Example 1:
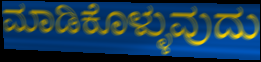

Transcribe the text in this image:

ಮಾಡಿಕೊಳ್ಳುವುದು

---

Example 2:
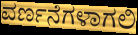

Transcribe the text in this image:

ವರ್ಣನೆಗಳಾಗಲಿ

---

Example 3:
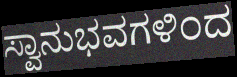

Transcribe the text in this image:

ಸ್ವಾನುಭವಗಳಿಂದ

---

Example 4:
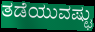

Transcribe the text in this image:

ತಡೆಯುವಷ್ಟು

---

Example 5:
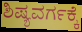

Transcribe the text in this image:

ಶಿಷ್ಯವರ್ಗಕ್ಕೆ